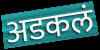
अडकलं